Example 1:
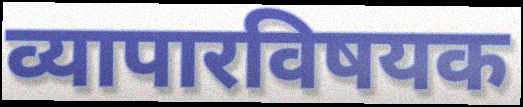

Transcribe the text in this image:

व्यापारविषयक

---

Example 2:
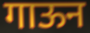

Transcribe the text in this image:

गाऊन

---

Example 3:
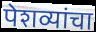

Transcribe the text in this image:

पेशव्यांचा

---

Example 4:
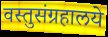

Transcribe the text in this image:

वस्तुसंग्रहालये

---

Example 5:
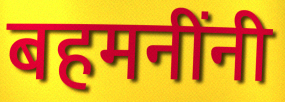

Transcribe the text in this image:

बहमनींनी